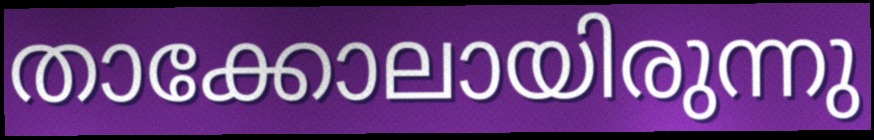
താക്കോലായിരുന്നു